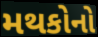
મથકોનો